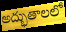
అద్భుతాలలో